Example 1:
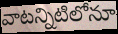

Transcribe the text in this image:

వాటన్నిటిలోనూ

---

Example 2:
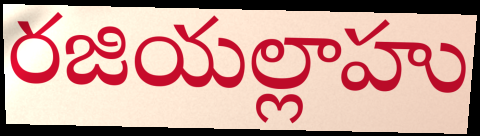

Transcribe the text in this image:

రజియల్లాహు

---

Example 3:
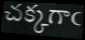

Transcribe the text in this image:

చక్కగాఁ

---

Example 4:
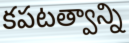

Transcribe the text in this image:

కపటత్వాన్ని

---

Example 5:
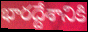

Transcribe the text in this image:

భారద్దేశానికి